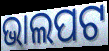
ଭାଲପଟ